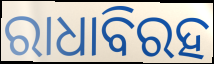
ରାଧାବିରହ